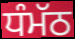
ਧੰਮੱਠ